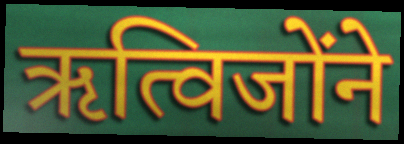
ऋत्विजोंने